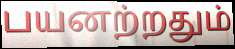
பயனற்றதும்